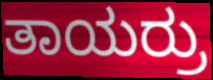
ತಾಯರ್ರು